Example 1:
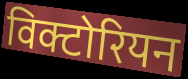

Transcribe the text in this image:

विक्टोरियन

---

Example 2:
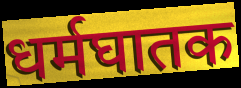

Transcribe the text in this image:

धर्मघातक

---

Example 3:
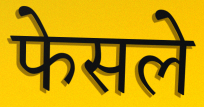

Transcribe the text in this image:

फेसले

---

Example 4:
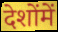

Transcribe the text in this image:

देशोंमें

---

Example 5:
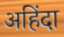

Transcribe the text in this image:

अहिंदा